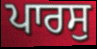
ਪਾਰਸੁ